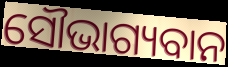
ସୌଭାଗ୍ୟବାନ